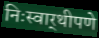
निःस्वार्थीपणे